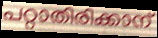
പറ്റാതിരിക്കാന്